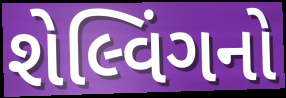
શેલ્વિંગનો